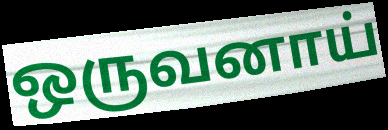
ஒருவனாய்